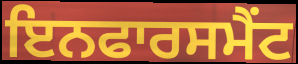
ਇਨਫਾਰਸਮੈਂਟ